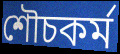
শৌচকর্ম